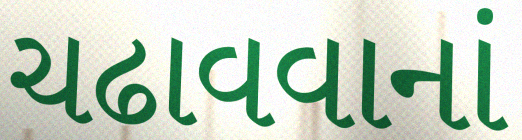
ચઢાવવાનાં